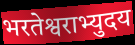
भरतेश्वराभ्युदय